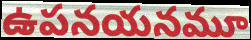
ఉపనయనమూ